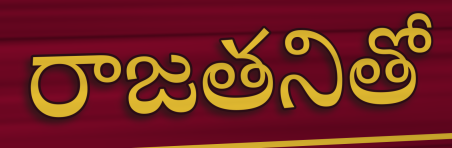
రాజతనితో